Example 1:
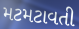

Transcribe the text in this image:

મટમટાવતી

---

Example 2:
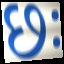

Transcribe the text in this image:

છઃ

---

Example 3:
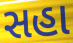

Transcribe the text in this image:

સહા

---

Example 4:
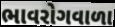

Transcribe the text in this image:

ભાવરોગવાળા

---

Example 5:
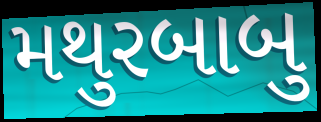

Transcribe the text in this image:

મથુરબાબુ